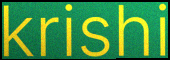
krishi